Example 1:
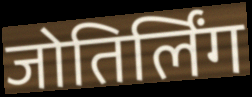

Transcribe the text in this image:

जोतिर्लिंग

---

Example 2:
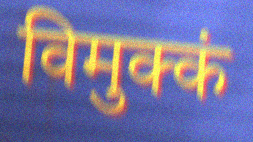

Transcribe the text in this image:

विमुक्कं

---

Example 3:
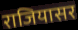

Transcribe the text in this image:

राजियासर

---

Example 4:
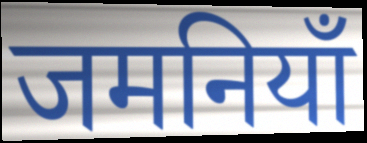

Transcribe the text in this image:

जमनियाँ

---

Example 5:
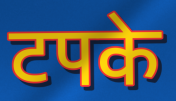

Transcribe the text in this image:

टपके